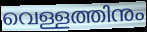
വെള്ളത്തിനും